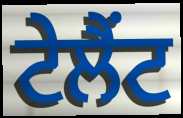
ਟੇਲੈਂਟ